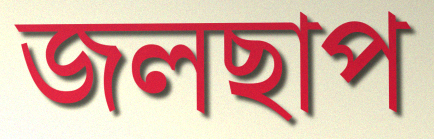
জলছাপ